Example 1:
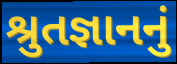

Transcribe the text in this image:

શ્રુતજ્ઞાનનું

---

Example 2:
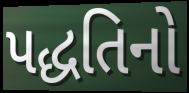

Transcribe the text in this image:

પદ્ધતિનો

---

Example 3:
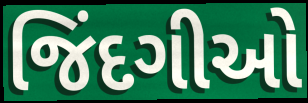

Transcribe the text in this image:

જિંદગીઓ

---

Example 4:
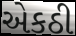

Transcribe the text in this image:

એકઠી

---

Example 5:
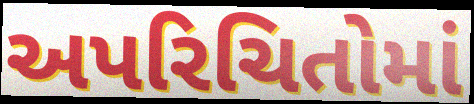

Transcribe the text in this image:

અપરિચિતોમાં